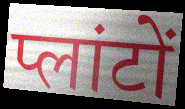
प्लांटों